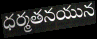
ధర్మతనయున